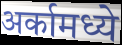
अर्कामध्ये